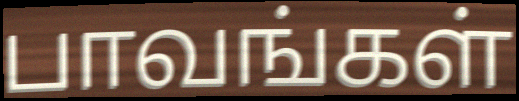
பாவங்கள்